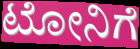
ಟೋನಿಗೆ